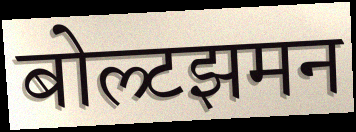
बोल्टझमन